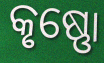
କୃଷ୍ଣୋ